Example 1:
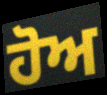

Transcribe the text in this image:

ਹੋਅ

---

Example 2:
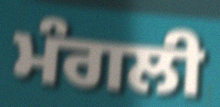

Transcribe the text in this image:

ਮੰਗਲੀ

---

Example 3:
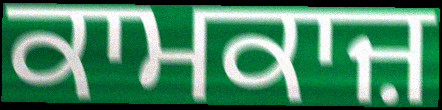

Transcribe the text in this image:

ਕਾਮਕਾਜ਼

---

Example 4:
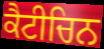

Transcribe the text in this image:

ਕੈਟੀਚਿਨ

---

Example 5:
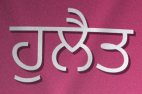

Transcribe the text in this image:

ਹੁਲੈਤ